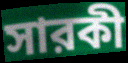
সারকী